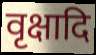
वृक्षादि